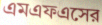
এমএফএসের